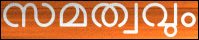
സമത്വവും